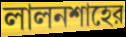
লালনশাহের